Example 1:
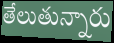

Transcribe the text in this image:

తేలుతున్నారు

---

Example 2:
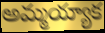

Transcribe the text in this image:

అమ్మయ్యాక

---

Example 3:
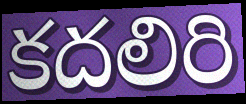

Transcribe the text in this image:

కదలిరి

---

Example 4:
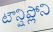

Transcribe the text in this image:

టౌన్షిప్లోని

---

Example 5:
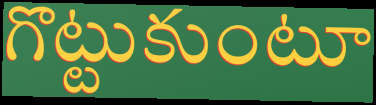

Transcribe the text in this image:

గొట్టుకుంటూ